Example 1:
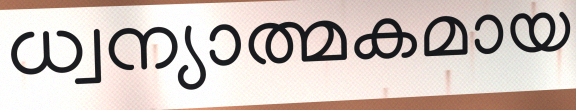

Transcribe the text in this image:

ധ്വന്യാത്മകമായ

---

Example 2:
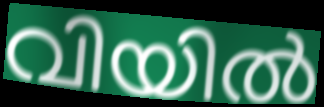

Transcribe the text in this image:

വിയിൽ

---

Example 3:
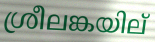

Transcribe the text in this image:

ശ്രീലങ്കയില്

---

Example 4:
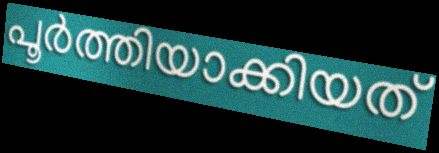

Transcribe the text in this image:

പൂർത്തിയാക്കിയത്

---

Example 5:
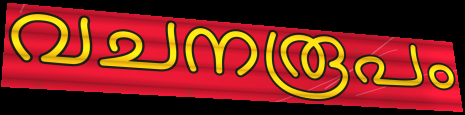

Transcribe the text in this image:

വചനരൂപം